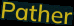
Pather